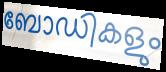
ബോഡികളും